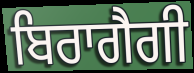
ਬਿਰਾਗੈਗੀ